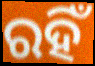
ରହିଁ